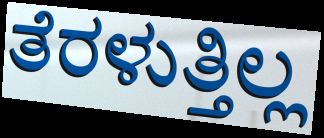
ತೆರಳುತ್ತಿಲ್ಲ